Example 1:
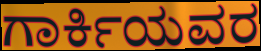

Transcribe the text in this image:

ಗಾರ್ಕಿಯವರ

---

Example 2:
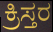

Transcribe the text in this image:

ಕ್ರಿಸ್ತರ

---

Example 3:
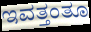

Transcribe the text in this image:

ಇವತ್ತಂತೂ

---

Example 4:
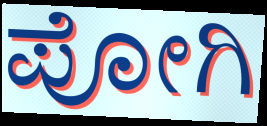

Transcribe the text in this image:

ಪೋಗಿ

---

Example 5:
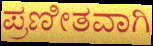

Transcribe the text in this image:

ಪ್ರಣೀತವಾಗಿ